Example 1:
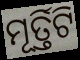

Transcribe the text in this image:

ମୂର୍ତ୍ତିଟି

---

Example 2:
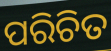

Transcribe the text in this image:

ପରିଚିତ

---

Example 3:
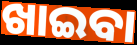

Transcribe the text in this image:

ଖାଇବା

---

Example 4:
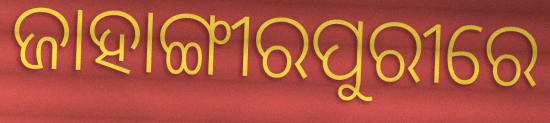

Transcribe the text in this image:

ଜାହାଙ୍ଗୀରପୁରୀରେ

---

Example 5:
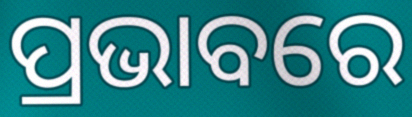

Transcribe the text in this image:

ପ୍ରଭାବରେ